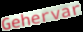
Gehervar